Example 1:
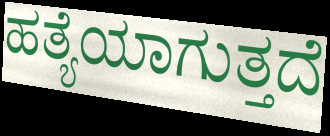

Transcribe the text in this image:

ಹತ್ಯೆಯಾಗುತ್ತದೆ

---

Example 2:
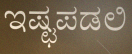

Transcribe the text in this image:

ಇಷ್ಟಪಡಲಿ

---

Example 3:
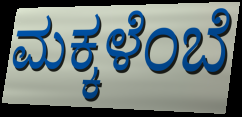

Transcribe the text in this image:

ಮಕ್ಕಳೆಂಬೆ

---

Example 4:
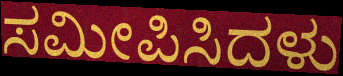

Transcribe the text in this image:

ಸಮೀಪಿಸಿದಳು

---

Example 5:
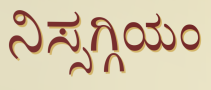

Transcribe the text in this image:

ನಿಸ್ಸಗ್ಗಿಯಂ